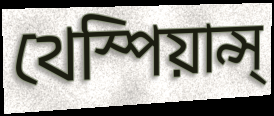
থেস্পিয়ান্স্